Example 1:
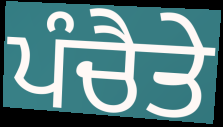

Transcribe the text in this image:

ਪੰਚੈਤੇ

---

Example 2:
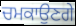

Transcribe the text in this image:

ਚਮਕਾਉਣਗੇ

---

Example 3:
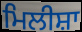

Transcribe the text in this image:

ਮਿਲੀਸ਼ਾ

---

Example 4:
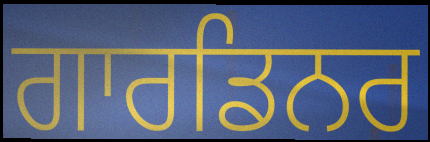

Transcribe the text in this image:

ਗਾਰਡਿਨਰ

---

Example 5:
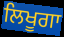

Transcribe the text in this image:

ਲਿਖੂਗਾ